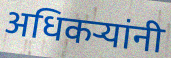
अधिकऱ्यांनी